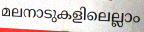
മലനാടുകളിലെല്ലാം